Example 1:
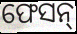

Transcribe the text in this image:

ଫେସନ୍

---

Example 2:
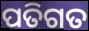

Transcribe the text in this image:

ପତିଗତ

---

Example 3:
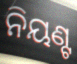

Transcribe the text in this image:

ନିୟଣ୍ଟ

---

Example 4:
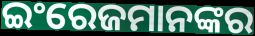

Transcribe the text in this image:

ଇଂରେଜମାନଙ୍କର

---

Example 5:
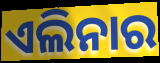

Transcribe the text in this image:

ଏଲିନାର